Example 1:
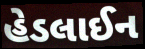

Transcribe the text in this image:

હેડલાઈન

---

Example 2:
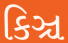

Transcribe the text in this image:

કિઞ્ચ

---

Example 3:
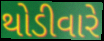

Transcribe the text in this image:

થોડીવારે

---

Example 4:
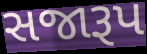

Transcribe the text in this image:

સજારૂપ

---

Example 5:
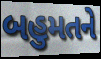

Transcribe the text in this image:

બહુમતને